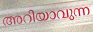
അറിയാവുന്ന